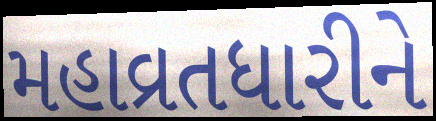
મહાવ્રતધારીને